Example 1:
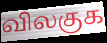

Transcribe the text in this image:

விலகுக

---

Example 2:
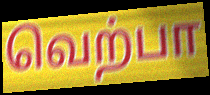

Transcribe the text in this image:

வெற்பா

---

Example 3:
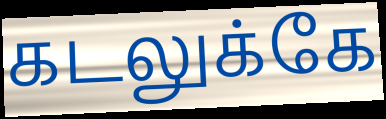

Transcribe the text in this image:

கடலுக்கே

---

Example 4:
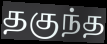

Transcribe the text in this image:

தகுந்த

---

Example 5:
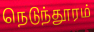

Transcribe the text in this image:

நெடுந்தூரம்